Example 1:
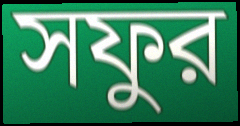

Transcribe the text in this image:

সফুর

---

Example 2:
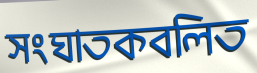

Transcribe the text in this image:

সংঘাতকবলিত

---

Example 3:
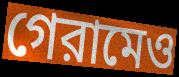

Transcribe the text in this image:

গেরামেও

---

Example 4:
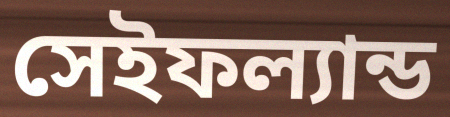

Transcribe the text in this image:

সেইফল্যান্ড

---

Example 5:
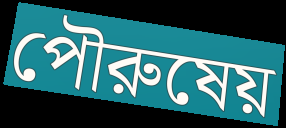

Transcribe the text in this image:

পৌরুষেয়